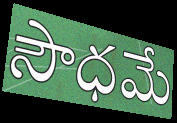
సౌధమే